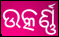
ଉତ୍କର୍ଣ୍ଣ